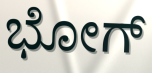
ಭೋಗ್